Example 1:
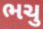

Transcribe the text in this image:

ભચુ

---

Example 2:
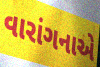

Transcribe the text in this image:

વારાંગનાએ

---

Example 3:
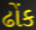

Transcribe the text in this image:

ઢોંક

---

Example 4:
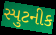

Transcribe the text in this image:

સ્પુટનીક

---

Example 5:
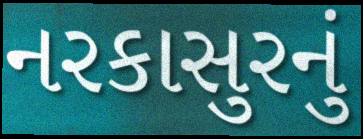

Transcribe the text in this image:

નરકાસુરનું